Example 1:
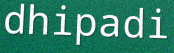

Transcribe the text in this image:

dhipadi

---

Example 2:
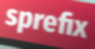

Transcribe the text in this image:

sprefix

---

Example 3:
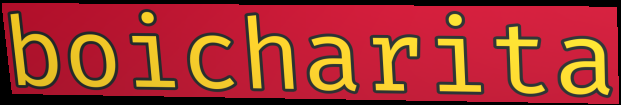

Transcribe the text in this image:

boicharita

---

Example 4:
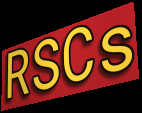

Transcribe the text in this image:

RSCs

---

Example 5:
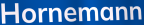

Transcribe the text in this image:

Hornemann